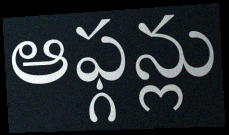
ఆఫ్గన్లు